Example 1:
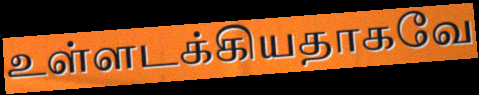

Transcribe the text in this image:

உள்ளடக்கியதாகவே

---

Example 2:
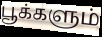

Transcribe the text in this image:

பூக்களும்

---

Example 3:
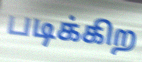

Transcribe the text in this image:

படிக்கிற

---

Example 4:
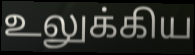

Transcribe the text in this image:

உலுக்கிய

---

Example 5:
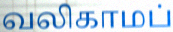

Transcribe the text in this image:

வலிகாமப்